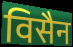
विसैन